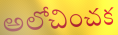
అలోచించక